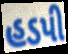
હડપી